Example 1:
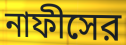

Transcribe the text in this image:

নাফীসের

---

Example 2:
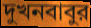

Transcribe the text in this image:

দুখনবাবুর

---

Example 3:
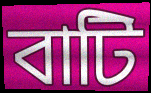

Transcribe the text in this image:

বাটি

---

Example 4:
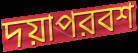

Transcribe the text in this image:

দয়াপরবশ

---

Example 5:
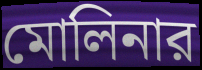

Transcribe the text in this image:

মোলিনার